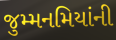
જુમ્મનમિયાંની